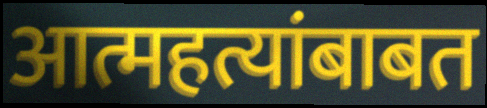
आत्महत्यांबाबत